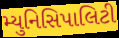
મ્યુનિસિપાલિટી